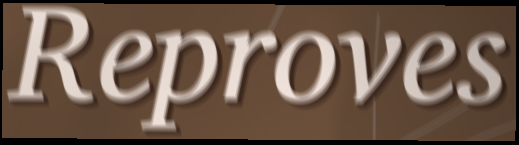
Reproves